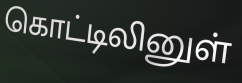
கொட்டிலினுள்